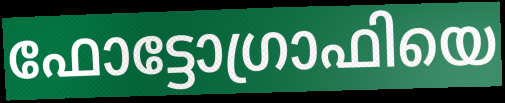
ഫോട്ടോഗ്രാഫിയെ